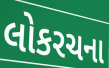
લોકરચના